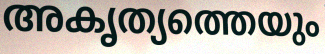
അകൃത്യത്തെയും